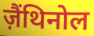
ज़ैंथिनोल